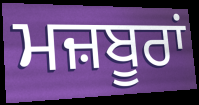
ਮਜ਼ਬੂਰਾਂ